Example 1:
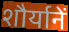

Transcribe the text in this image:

शौर्यानें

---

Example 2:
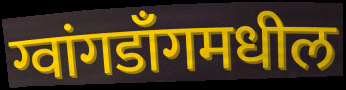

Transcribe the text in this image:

ग्वांगडाँगमधील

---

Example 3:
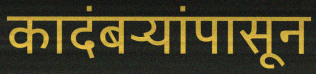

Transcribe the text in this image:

कादंबऱ्यांपासून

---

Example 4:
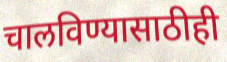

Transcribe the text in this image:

चालविण्यासाठीही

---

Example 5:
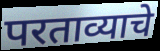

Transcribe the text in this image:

परताव्याचे